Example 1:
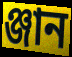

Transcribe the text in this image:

ঞ্জান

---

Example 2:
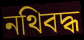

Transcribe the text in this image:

নথিবদ্ধ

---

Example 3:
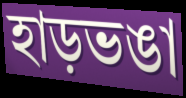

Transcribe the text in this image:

হাড়ভঙা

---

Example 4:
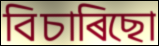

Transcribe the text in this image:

বিচাৰিছো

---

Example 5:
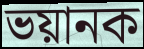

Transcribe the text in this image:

ভয়ানক